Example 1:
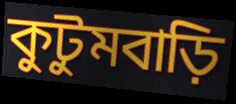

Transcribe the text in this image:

কুটুমবাড়ি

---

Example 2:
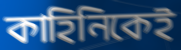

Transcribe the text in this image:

কাহিনিকেই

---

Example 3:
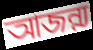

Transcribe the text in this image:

আজন্ম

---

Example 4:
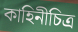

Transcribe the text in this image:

কাহিনীচিত্র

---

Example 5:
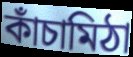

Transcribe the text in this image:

কাঁচামিঠা